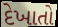
દેખાતો